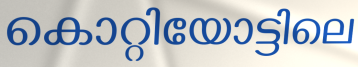
കൊറ്റിയോട്ടിലെ